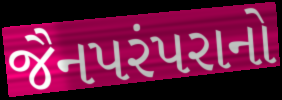
જૈનપરંપરાનો